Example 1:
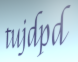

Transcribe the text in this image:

tujdpd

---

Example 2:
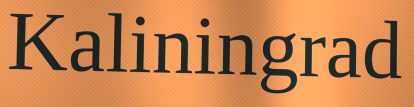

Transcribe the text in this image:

Kaliningrad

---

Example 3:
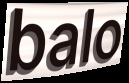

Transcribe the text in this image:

balo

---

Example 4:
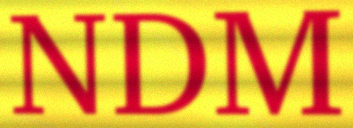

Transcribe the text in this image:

NDM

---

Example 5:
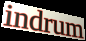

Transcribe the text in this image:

indrum